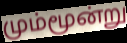
மும்மூன்று